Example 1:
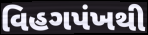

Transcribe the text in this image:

વિહગપંખથી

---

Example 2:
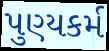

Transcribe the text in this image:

પુણ્યકર્મ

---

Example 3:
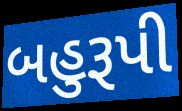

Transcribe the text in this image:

બહુરૂપી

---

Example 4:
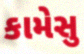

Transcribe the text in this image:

કામેસુ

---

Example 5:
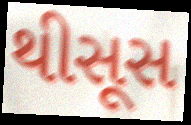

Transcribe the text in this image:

થીસૂસ